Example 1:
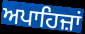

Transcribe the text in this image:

ਅਪਾਹਿਜ਼ਾਂ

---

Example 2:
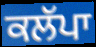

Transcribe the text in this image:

ਕਲੱਪਾ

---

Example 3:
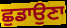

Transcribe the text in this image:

ਛੁਡਾਉਣਾ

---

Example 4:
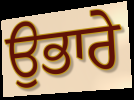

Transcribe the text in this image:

ਉਭਾਰੇ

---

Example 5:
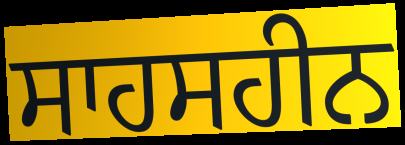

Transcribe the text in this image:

ਸਾਹਸਹੀਨ